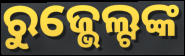
ରୁଜ୍ଭେଲ୍ଟଙ୍କ